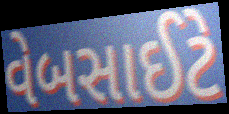
વેબસાઈટે